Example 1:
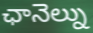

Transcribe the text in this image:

ఛానెల్ను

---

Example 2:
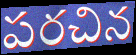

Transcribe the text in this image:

పరచిన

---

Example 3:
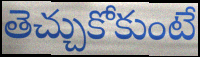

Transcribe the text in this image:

తెచ్చుకోకుంటే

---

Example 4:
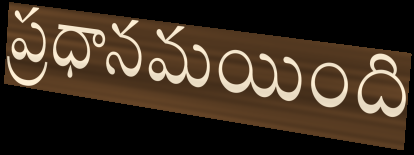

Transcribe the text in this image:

ప్రధానమయింది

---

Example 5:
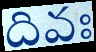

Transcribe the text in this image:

దివః